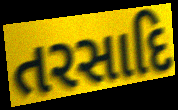
તરસાદિ